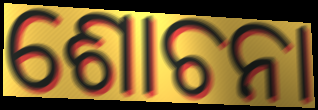
ଶୋଚନା